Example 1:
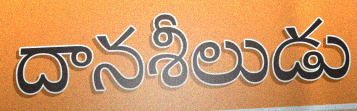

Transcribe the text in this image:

దానశీలుడు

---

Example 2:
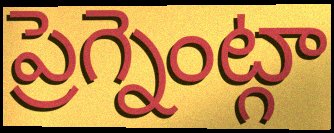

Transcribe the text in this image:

ప్రెగ్నెంట్గా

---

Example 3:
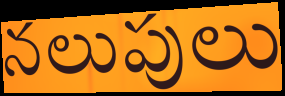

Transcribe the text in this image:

నలుపులు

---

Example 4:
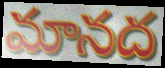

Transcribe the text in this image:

మానద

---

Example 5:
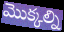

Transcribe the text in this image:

మొక్కల్ని